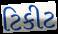
ટિકીટ